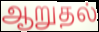
ஆறுதல்